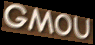
GMOU